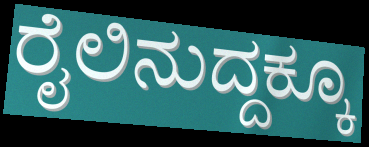
ರೈಲಿನುದ್ದಕ್ಕೂ